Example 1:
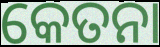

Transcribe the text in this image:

କେତନା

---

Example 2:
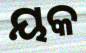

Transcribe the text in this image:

ୟକ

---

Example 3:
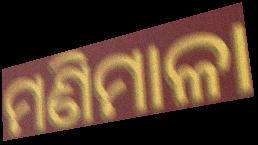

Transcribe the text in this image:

ମଣିମାଳା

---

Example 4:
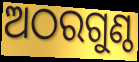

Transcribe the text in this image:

ଅଠରଗୁଣ୍ଠ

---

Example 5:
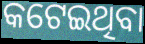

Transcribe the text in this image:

କଟେଇଥିବା